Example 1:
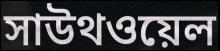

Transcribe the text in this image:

সাউথওয়েল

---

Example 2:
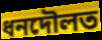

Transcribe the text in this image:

ধনদৌলত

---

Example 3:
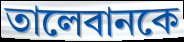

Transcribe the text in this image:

তালেবানকে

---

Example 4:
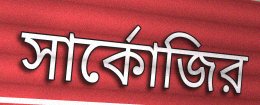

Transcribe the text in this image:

সার্কোজির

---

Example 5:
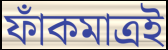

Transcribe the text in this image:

ফাঁকমাত্রই